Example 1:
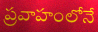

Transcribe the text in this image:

ప్రవాహంలోనే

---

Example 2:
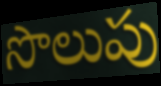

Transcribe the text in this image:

సొలుపు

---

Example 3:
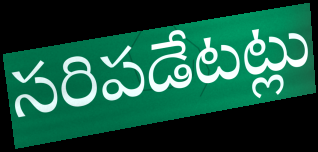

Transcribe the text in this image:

సరిపడేటట్లు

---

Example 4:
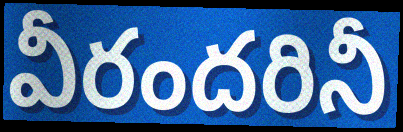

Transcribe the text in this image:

వీరందరినీ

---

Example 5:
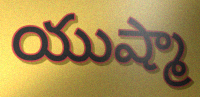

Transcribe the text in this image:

యుష్మా